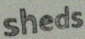
sheds